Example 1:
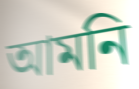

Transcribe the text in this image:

আমনি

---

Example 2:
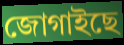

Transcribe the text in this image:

জোগাইছে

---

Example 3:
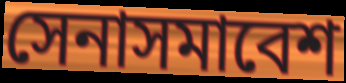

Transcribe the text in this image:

সেনাসমাবেশ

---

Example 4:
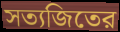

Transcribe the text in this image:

সত্যজিতের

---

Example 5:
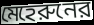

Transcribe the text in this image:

মেহেরুনের